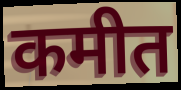
कमीत